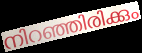
നിറഞ്ഞിരിക്കും